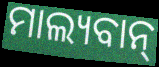
ମାଲ୍ୟବାନ୍